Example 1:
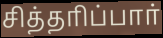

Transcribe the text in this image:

சித்தரிப்பார்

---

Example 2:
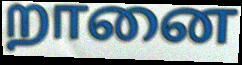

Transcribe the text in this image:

றானை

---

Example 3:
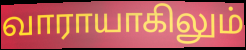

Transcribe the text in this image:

வாராயாகிலும்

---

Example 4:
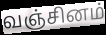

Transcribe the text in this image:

வஞ்சினம்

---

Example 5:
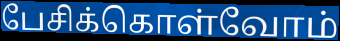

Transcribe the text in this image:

பேசிக்கொள்வோம்